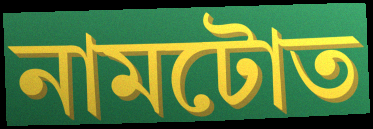
নামটোত